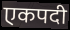
एकपदी